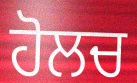
ਹੋਲਚ